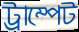
ট্রাম্পেট